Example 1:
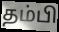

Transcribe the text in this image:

தம்பி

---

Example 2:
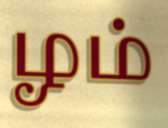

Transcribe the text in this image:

ழம்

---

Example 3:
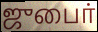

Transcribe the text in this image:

ஜுபைர்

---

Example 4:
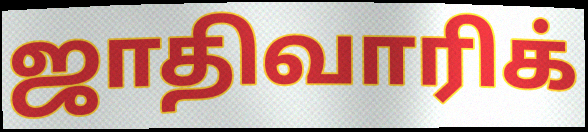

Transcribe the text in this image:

ஜாதிவாரிக்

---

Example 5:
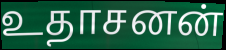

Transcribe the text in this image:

உதாசனன்